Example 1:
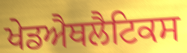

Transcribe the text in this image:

ਖੇਡਐਥਲੈਟਿਕਸ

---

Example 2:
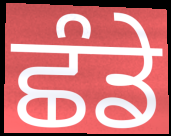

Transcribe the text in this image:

ਛੰਡੇ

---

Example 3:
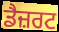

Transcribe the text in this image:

ਡੈਜ਼ਰਟ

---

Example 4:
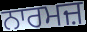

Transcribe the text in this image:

ਨਾਰਮਜ਼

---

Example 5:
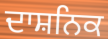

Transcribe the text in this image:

ਦਾਸ਼ਨਿਕ